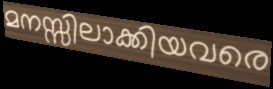
മനസ്സിലാക്കിയവരെ